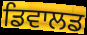
ਡਿਵਾਲਡ